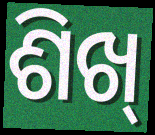
ଶିଖ୍